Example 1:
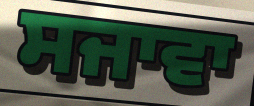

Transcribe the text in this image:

ਸਜਾਵਾ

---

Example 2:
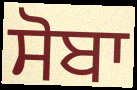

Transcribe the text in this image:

ਸੋਬਾ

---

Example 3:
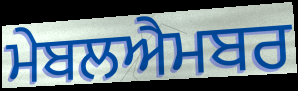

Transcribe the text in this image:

ਮੇਬਲਐਮਬਰ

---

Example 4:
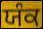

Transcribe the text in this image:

ਯੰਕ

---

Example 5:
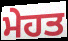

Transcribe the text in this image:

ਮੇਹਤ